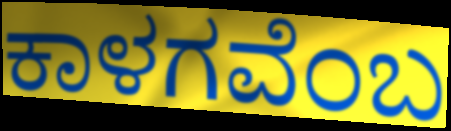
ಕಾಳಗವೆಂಬ